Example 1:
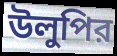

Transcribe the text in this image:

উলুপির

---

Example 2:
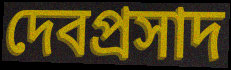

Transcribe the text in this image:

দেবপ্রসাদ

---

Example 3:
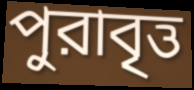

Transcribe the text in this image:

পুরাবৃত্ত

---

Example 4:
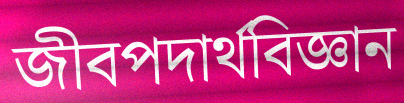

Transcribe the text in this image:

জীবপদার্থবিজ্ঞান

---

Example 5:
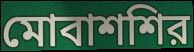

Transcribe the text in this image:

মোবাশশির